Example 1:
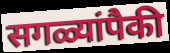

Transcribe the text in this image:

सगळ्यांपैकी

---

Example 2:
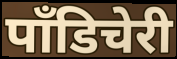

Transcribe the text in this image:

पॉंडिचेरी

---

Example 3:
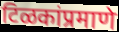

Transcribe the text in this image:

टिळकांप्रमाणे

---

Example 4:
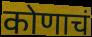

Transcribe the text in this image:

कोणाचं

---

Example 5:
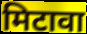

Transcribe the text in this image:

मिटावा